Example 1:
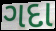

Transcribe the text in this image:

ગદા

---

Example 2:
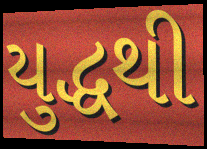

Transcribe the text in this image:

યુદ્ધથી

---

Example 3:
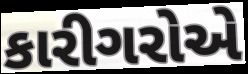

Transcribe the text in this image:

કારીગરોએ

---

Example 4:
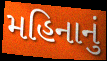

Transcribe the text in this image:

મહિનાનું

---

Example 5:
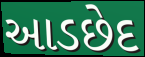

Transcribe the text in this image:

આડછેદ